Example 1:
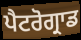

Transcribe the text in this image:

ਪੈਟਰੋਗ੍ਰਾਡ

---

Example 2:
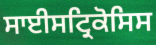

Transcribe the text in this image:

ਸਾਈਸਟ੍ਰਿਕੋਸਿਸ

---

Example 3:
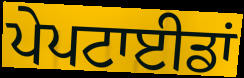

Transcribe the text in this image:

ਪੇਪਟਾਈਡਾਂ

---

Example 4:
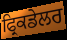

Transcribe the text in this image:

ਫ੍ਰਿਕਡੇਲਰ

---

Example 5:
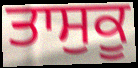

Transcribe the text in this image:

ਤਾਸੁਕੂ